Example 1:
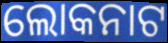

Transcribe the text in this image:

ଲୋକନାଟ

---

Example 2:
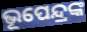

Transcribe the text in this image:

ଭୂପେନ୍ଦ୍ରଙ୍କ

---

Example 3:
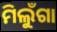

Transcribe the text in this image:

ମିଲୁଁଗା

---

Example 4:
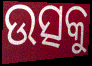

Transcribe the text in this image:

ଉତ୍ସକୁ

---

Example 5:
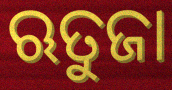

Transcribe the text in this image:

ଋତୁଜା